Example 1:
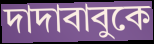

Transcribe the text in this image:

দাদাবাবুকে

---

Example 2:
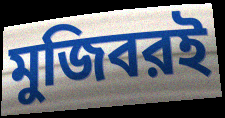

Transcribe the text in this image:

মুজিবরই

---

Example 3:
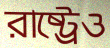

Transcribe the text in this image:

রাষ্ট্রেও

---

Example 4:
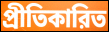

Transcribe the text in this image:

প্রীতিকারিত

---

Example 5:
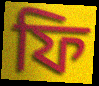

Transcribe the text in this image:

ফি